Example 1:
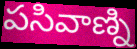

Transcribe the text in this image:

పసివాణ్ని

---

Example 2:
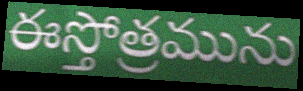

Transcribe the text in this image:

ఈస్తోత్రమును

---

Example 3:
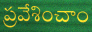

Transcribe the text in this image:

ప్రవేశించాం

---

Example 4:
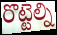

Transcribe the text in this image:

రొట్టెల్ని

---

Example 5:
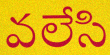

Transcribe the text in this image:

వలేసి